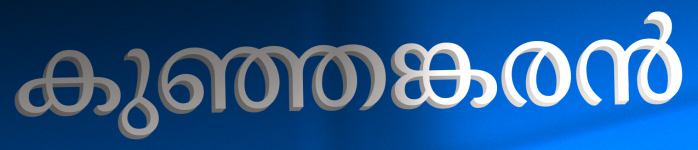
കുഞ്ഞങ്കരൻ